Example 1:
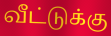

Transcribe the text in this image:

வீட்டுக்கு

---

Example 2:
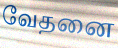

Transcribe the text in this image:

வேதனை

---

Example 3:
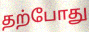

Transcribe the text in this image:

தற்போது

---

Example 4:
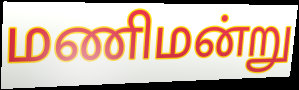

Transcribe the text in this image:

மணிமன்று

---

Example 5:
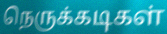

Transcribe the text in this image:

நெருக்கடிகள்